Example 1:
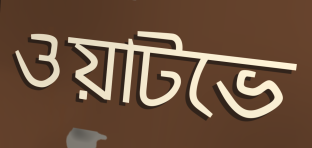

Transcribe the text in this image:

ওয়াটভে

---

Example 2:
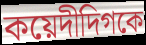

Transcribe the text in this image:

কয়েদীদিগকে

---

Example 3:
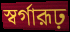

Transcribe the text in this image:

স্বর্গারূঢ়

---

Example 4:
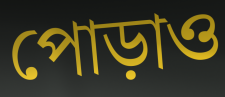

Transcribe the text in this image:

পোড়াও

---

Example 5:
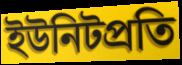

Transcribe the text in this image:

ইউনিটপ্রতি